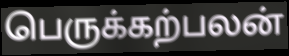
பெருக்கற்பலன்